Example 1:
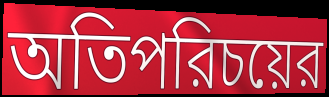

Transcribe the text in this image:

অতিপরিচয়ের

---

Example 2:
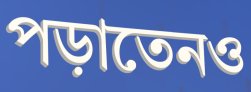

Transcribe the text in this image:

পড়াতেনও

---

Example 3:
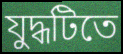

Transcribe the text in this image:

যুদ্ধটিতে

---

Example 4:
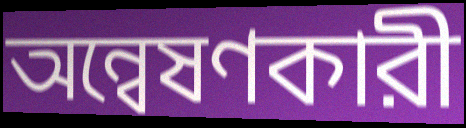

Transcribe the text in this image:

অন্বেষণকারী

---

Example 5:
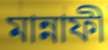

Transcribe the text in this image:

মান্নাফী